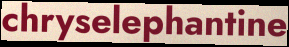
chryselephantine